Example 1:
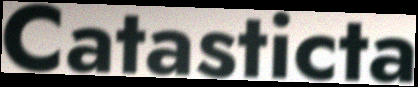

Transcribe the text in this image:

Catasticta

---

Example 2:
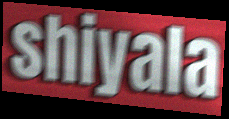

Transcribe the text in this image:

shiyala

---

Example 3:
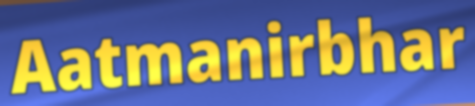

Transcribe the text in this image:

Aatmanirbhar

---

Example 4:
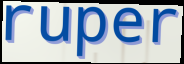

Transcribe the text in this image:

ruper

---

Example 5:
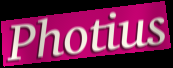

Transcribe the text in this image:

Photius